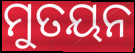
ମୁତୟନ